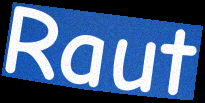
Raut